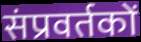
संप्रवर्तकों